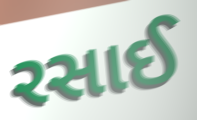
રસાઈ